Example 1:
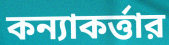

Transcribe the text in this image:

কন্যাকর্ত্তার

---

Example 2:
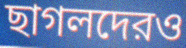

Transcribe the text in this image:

ছাগলদেরও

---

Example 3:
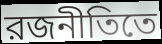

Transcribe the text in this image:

রজনীতিতে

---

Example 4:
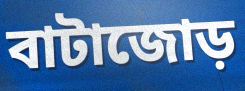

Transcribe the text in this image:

বাটাজোড়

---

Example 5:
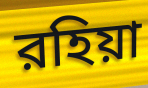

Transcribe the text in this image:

রহিয়া